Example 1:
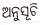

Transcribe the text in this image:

ଅନୁସୂଚି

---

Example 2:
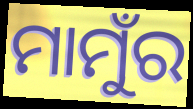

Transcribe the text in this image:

ମାମୁଁର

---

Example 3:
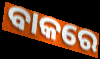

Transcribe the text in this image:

ବାକରେ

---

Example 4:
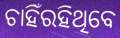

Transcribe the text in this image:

ଚାହିଁରହିଥିବେ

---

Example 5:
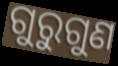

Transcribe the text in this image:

ଗୁରୁଗୁଣ